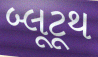
બ્લૂટૂથ